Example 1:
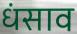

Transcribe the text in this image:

धंसाव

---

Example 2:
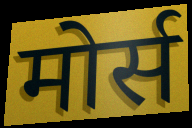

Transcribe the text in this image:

मोर्स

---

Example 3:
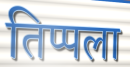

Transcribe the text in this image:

तिप्पला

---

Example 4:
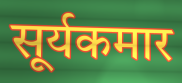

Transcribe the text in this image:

सूर्यकमार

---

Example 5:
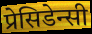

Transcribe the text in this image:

प्रेसिडेन्सी